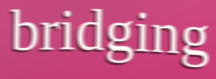
bridging